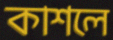
কাশলে